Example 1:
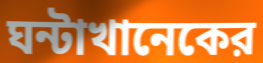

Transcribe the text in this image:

ঘন্টাখানেকের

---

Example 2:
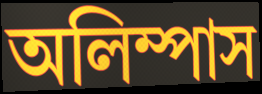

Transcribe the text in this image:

অলিম্পাস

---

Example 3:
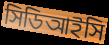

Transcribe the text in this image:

সিডিআইসি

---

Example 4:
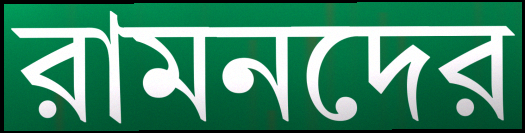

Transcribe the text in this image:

রামনদের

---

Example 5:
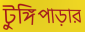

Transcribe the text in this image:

টুঙ্গিপাড়ার